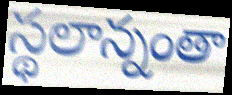
స్థలాన్నంతా